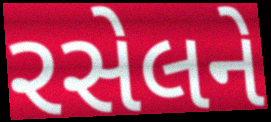
રસેલને